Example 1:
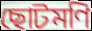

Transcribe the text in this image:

ছোটমণি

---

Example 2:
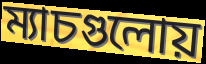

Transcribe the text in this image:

ম্যাচগুলোয়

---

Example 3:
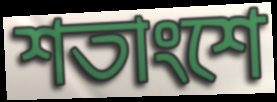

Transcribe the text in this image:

শতাংশে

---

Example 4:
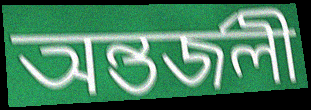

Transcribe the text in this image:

অন্তর্জলী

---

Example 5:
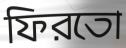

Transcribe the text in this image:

ফিরতো